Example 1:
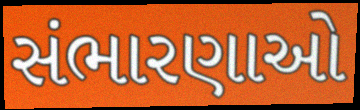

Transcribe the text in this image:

સંભારણાઓ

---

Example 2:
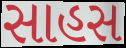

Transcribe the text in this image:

સાહસ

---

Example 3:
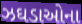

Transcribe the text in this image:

ઝઘડાઓના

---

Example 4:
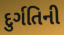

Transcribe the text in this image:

દુર્ગતિની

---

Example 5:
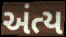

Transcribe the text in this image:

અંત્ય